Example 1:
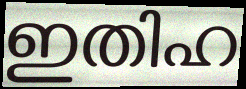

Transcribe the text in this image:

ഇതിഹ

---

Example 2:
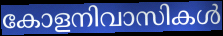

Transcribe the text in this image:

കോളനിവാസികൾ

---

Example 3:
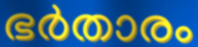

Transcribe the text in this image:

ഭർതാരം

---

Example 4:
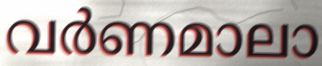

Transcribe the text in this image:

വർണമാലാ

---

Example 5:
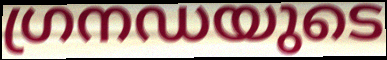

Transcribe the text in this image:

ഗ്രനഡയുടെ